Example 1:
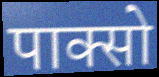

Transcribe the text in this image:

पाक्सो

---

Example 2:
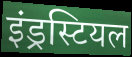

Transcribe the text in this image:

इंड्रस्टियल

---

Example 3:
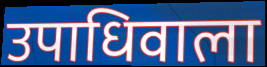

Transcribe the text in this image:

उपाधिवाला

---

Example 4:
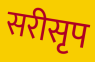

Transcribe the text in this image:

सरीसृप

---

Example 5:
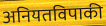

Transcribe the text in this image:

अनियतविपाकी